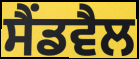
ਸੈਂਡਵੈਲ